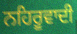
ਨਹਿਰੂਵਾਦੀ